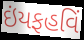
ઇંયફહવિં